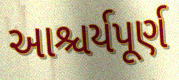
આશ્ચર્યપૂર્ણ